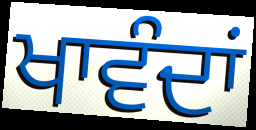
ਖਾਵੰਦਾਂ